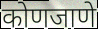
कोणजाणे